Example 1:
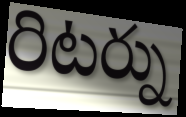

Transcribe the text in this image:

రిటర్ను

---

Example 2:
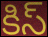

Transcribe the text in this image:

కిస్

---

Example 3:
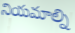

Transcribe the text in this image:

నియమాల్ని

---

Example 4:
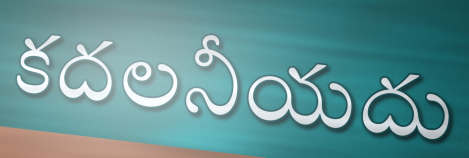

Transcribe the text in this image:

కదలనీయదు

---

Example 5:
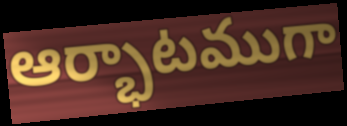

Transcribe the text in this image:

ఆర్భాటముగా